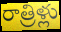
రాత్రిళ్లు